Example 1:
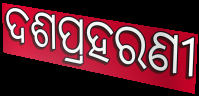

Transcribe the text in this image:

ଦଶପ୍ରହରଣୀ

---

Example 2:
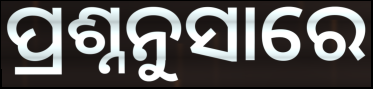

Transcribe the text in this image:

ପ୍ରଶ୍ନନୁସାରେ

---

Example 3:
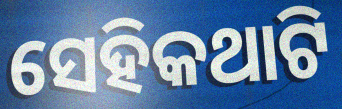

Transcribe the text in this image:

ସେହିକଥାଟି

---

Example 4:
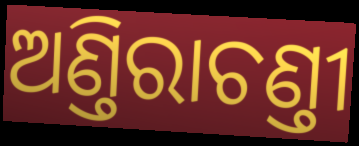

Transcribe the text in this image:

ଅଣ୍ତିରାଚଣ୍ତୀ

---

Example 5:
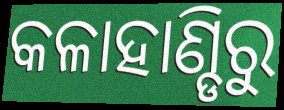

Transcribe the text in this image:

କଳାହାଣ୍ଡିରୁ